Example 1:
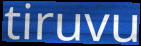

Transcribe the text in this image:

tiruvu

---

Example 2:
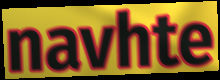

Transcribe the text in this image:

navhte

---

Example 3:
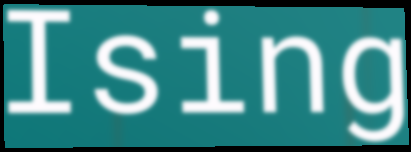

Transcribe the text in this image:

Ising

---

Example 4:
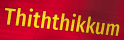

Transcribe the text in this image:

Thiththikkum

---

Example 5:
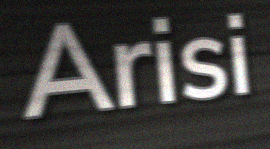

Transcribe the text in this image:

Arisi